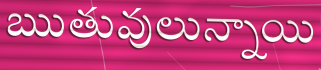
ఋతువులున్నాయి